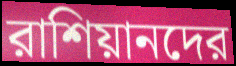
রাশিয়ানদের